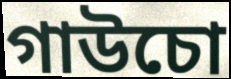
গাউচো